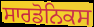
ਸਾਰਡੋਨਿਕਸ